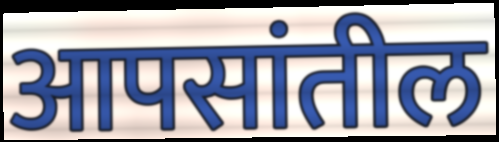
आपसांतील